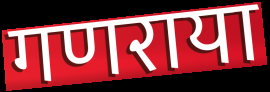
गणराया